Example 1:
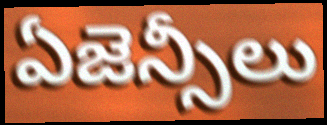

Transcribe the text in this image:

ఏజెన్సీలు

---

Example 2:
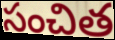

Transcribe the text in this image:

సంచిత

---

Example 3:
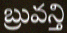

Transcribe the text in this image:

బ్రువన్తి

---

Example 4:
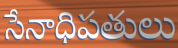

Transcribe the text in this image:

సేనాధిపతులు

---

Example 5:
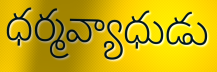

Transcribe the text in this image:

ధర్మవ్యాధుడు